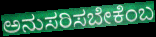
ಅನುಸರಿಸಬೇಕೆಂಬ